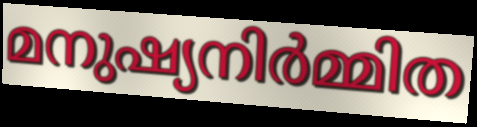
മനുഷ്യനിർമ്മിത